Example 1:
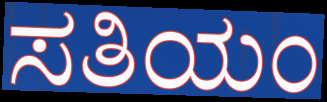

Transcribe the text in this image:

ಸತಿಯಂ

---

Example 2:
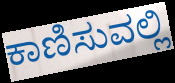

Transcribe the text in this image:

ಕಾಣಿಸುವಲ್ಲಿ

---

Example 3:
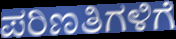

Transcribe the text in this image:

ಪರಿಣತಿಗಳಿಗೆ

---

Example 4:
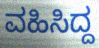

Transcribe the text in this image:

ವಹಿಸಿದ್ದ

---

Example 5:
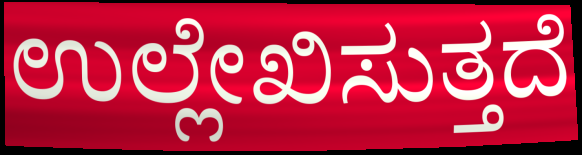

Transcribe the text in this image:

ಉಲ್ಲೇಖಿಸುತ್ತದೆ